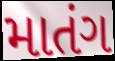
માતંગ